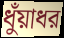
ধুঁয়াধর